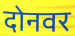
दोनवर